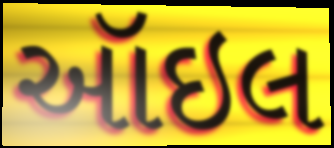
ઑઇલ